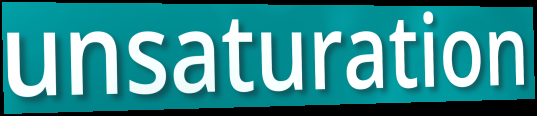
unsaturation